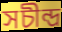
সচীন্দ্র